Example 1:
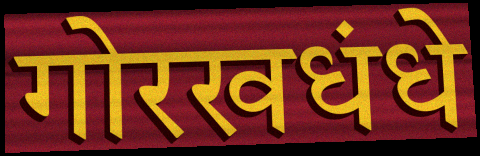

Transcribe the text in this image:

गोरखधंधे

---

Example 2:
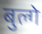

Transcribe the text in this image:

बुल्गे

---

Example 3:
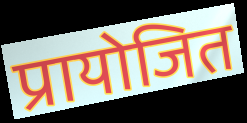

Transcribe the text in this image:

प्रायोजित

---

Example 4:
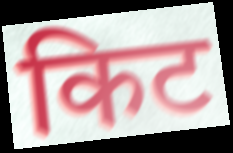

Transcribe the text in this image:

किट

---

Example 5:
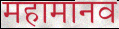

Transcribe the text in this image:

महामानव